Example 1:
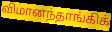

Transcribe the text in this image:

விமானந்தாங்கிக்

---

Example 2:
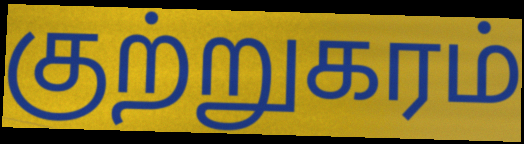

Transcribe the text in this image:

குற்றுகரம்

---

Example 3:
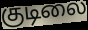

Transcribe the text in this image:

குடிலை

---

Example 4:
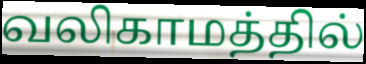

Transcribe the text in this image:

வலிகாமத்தில்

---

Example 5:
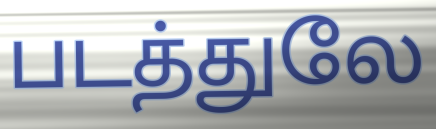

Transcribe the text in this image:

படத்துலே